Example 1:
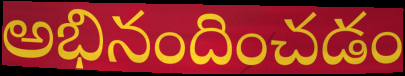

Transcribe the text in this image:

అభినందించడం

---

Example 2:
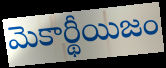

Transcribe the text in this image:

మెకార్థీయిజం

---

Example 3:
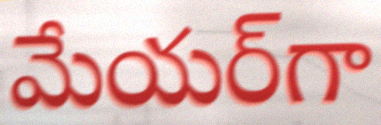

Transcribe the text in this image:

మేయర్‌గా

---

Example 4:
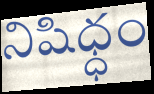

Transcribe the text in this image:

నిషిధ్ధం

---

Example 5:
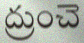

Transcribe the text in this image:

ద్రుంచె